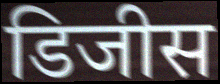
डिजीस